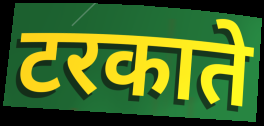
टरकाते